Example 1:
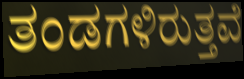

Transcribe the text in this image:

ತಂಡಗಳಿರುತ್ತವೆ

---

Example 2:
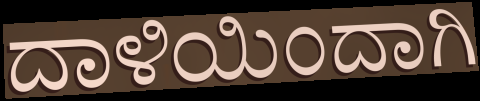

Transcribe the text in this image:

ದಾಳಿಯಿಂದಾಗಿ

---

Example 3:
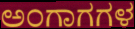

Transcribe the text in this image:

ಅಂಗಾಗಗಳ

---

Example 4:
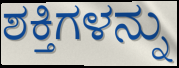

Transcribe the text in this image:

ಶಕ್ತಿಗಳನ್ನು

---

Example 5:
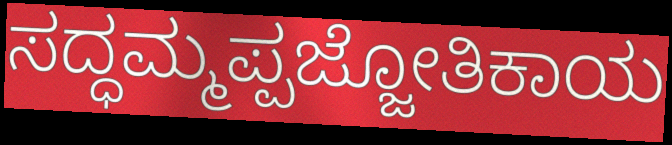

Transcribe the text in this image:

ಸದ್ಧಮ್ಮಪ್ಪಜ್ಜೋತಿಕಾಯ